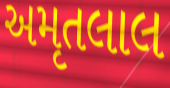
અમૃતલાલ